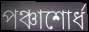
পঞ্চাশোর্ধ